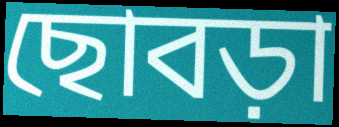
ছোবড়া